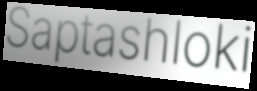
Saptashloki